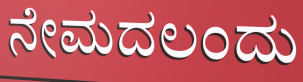
ನೇಮದಲಂದು